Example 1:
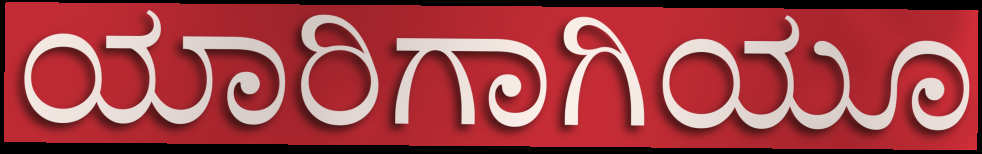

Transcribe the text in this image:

ಯಾರಿಗಾಗಿಯೂ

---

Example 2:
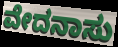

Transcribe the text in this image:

ವೇದನಾಸು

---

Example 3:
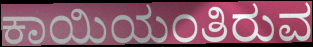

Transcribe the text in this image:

ಕಾಯಿಯಂತಿರುವ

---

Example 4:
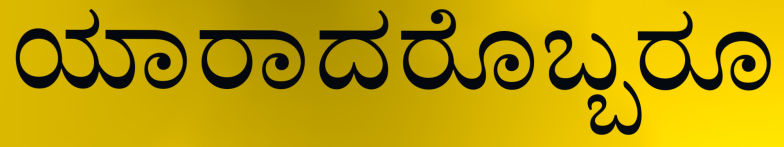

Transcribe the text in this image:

ಯಾರಾದರೊಬ್ಬರೂ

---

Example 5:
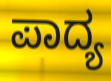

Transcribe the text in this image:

ಪಾದ್ಯ